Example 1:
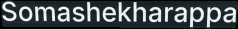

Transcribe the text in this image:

Somashekharappa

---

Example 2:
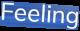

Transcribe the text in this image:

Feeling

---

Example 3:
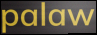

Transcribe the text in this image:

palaw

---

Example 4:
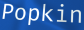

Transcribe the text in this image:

Popkin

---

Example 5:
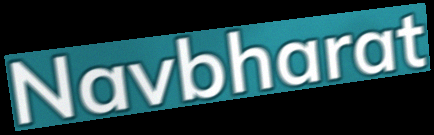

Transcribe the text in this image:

Navbharat